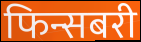
फिन्सबरी